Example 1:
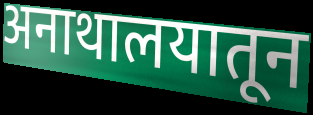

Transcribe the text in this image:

अनाथालयातून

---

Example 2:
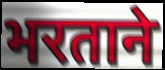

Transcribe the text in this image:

भरताने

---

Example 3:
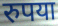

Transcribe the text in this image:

रुपया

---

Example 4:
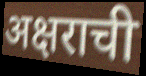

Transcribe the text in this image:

अक्षराची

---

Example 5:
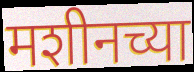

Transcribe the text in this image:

मशीनच्या